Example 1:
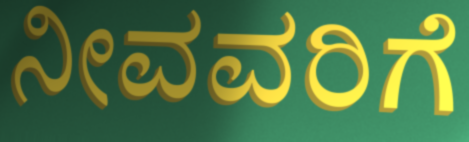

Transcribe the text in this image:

ನೀವವರಿಗೆ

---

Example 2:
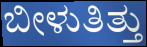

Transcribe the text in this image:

ಬೀಳುತಿತ್ತು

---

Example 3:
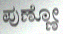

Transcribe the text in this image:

ಪುಣ್ಣೋ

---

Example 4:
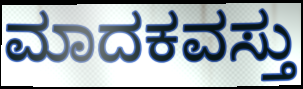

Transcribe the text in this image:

ಮಾದಕವಸ್ತು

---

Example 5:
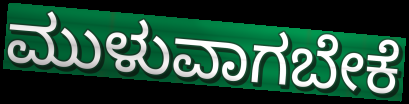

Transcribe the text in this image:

ಮುಳುವಾಗಬೇಕೆ